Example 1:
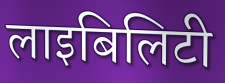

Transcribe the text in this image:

लाइबिलिटी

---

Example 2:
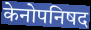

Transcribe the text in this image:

केनोपनिषद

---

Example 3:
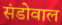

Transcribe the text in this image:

संडोवाल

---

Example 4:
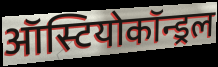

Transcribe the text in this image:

ऑस्टियोकॉन्ड्रल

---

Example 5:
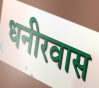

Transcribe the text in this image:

धनीरवास